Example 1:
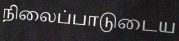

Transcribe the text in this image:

நிலைப்பாடுடைய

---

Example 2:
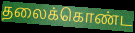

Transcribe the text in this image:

தலைக்கொண்ட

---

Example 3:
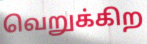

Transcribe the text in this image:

வெறுக்கிற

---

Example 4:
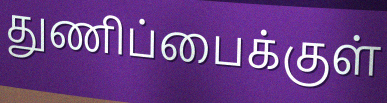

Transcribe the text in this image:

துணிப்பைக்குள்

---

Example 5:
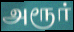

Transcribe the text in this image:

அரூர்